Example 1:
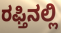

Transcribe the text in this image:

ರಫ್ತಿನಲ್ಲಿ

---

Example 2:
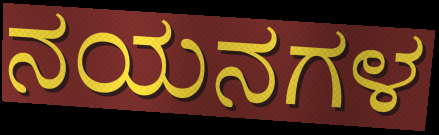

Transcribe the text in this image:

ನಯನಗಳ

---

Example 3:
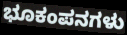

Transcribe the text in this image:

ಭೂಕಂಪನಗಳು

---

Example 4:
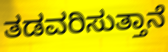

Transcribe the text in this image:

ತಡವರಿಸುತ್ತಾನೆ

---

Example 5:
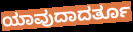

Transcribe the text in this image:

ಯಾವುದಾದರ್ತೂ